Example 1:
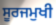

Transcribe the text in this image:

ਸੂਰਜਮੁਖੀ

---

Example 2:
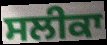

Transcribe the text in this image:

ਸਲੀਕਾ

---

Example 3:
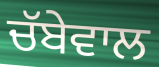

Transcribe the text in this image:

ਚੱਬੇਵਾਲ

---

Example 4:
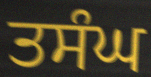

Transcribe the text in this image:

ਤਸੰਘ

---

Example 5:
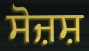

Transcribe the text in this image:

ਸੋਜ਼ਸ਼